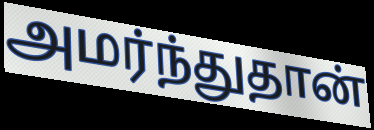
அமர்ந்துதான்